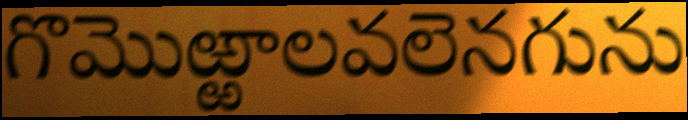
గొమొఱ్ఱాలవలెనగును